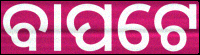
ବାପଟେ